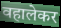
वहालेकर